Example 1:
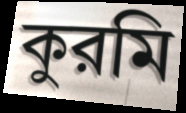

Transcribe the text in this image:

কুরমি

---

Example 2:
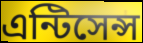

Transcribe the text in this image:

এন্টিসেন্স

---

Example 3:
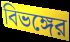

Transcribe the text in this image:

বিভঙ্গের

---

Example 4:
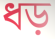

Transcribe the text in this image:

ধড়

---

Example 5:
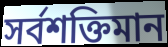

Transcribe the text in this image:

সর্বশক্তিমান